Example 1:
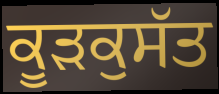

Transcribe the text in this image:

ਕੂੜਕੁਸੱਤ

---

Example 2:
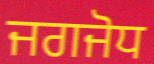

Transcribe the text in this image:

ਜਗਜੋਧ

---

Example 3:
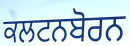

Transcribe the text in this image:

ਕਲਟਨਬੋਰਨ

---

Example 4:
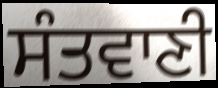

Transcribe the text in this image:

ਸੰਤਵਾਣੀ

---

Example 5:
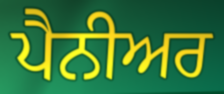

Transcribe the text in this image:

ਪੈਨੀਅਰ